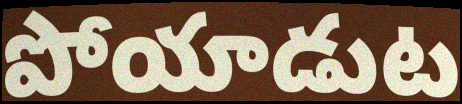
పోయాడుట